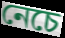
নেচে